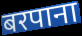
बरपाना